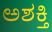
ಅಶಕ್ತಿ